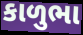
કાળુભા